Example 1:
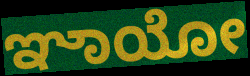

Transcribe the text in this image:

ಞಾಯೋ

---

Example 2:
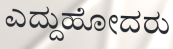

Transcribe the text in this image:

ಎದ್ದುಹೋದರು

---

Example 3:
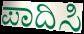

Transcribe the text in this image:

ಪಾದಿಸಿ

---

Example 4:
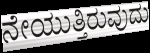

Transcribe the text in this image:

ನೇಯುತ್ತಿರುವುದು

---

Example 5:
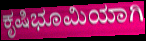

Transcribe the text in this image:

ಕೃಷಿಭೂಮಿಯಾಗಿ